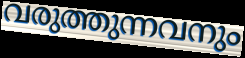
വരുത്തുന്നവനും